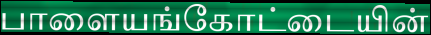
பாளையங்கோட்டையின்